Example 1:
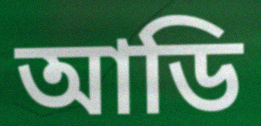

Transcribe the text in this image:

আডি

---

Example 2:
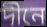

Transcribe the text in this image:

দীনে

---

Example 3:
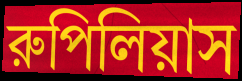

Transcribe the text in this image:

রুপিলিয়াস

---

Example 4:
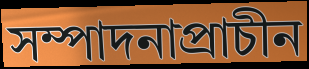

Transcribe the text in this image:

সম্পাদনাপ্রাচীন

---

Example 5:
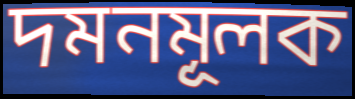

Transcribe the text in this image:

দমনমূলক